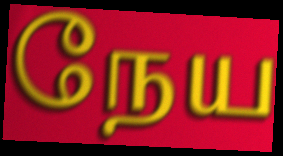
நேய